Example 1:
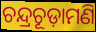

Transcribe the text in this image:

ଚନ୍ଦ୍ରଚୂଡ଼ାମଣି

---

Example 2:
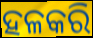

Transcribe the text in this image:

ହଳକରି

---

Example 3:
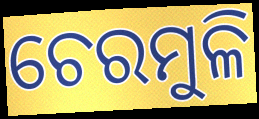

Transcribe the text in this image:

ଚେରମୁଳି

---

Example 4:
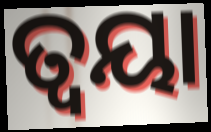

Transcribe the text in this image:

ତ୍ୱୟା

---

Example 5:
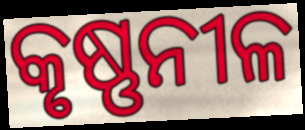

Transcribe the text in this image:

କୃଷ୍ଣନୀଳ